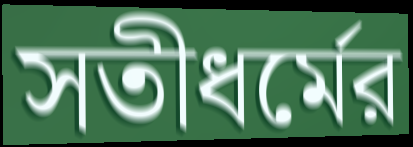
সতীধর্মের